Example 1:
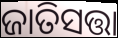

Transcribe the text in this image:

ଜାତିସତ୍ତା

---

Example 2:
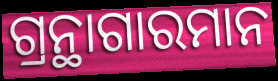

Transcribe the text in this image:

ଗ୍ରନ୍ଥାଗାରମାନ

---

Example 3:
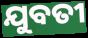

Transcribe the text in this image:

ଯୁବତୀ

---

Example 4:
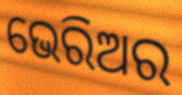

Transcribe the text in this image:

ଭେରିଅର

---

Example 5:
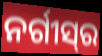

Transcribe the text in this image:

ନର୍ଗୀସ୍‍ର